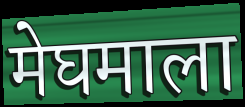
मेघमाला